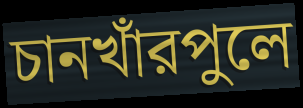
চানখাঁরপুলে